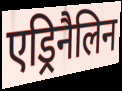
एड्रिनैलिन